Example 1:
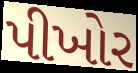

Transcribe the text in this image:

પીખોર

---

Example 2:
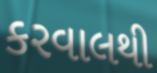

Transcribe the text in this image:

કરવાલથી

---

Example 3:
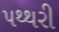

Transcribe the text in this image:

પથ્થરી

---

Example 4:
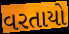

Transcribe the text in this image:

વરતાયો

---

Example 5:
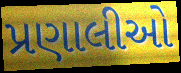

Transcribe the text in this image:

પ્રણાલીઓ